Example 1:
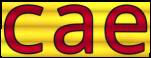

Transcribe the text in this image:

cae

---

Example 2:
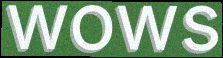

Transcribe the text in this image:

wows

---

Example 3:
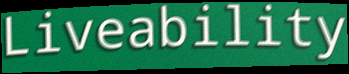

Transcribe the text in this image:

Liveability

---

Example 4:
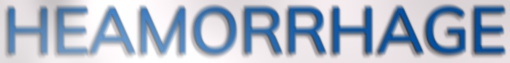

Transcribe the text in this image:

HEAMORRHAGE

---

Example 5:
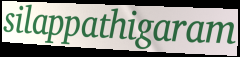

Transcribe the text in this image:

silappathigaram